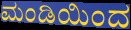
ಮಂಡಿಯಿಂದ